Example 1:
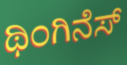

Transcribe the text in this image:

ಥಿಂಗಿನೆಸ್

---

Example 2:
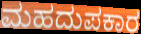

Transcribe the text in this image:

ಮಹದುಪಕಾರ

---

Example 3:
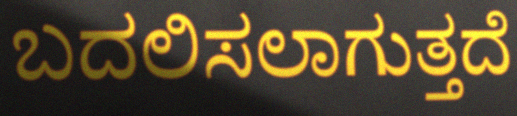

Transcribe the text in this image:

ಬದಲಿಸಲಾಗುತ್ತದೆ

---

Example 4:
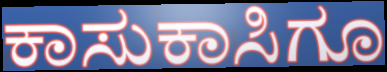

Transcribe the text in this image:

ಕಾಸುಕಾಸಿಗೂ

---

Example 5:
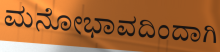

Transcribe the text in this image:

ಮನೋಭಾವದಿಂದಾಗಿ